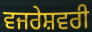
ਵਜਰੇਸ਼ਵਰੀ